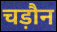
चड़ौन